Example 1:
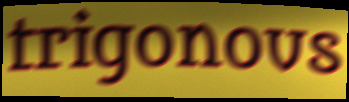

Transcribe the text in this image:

trigonous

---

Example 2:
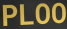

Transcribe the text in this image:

PLOO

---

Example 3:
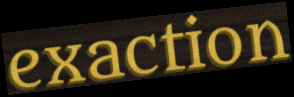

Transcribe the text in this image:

exaction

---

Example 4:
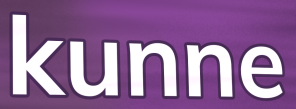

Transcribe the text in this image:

kunne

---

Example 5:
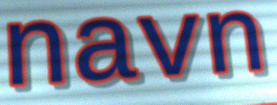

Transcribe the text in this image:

navn